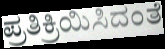
ಪ್ರತಿಕ್ರಿಯಿಸಿದಂತೆ